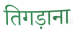
तिगड़ाना